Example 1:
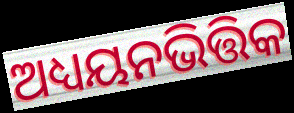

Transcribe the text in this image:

ଅଧ୍ୟୟନଭିତ୍ତିକ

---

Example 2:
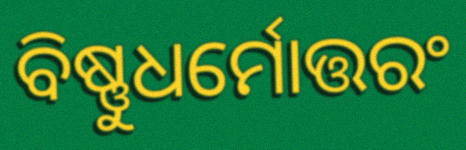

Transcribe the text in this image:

ବିଷ୍ଣୁଧର୍ମୋତ୍ତରଂ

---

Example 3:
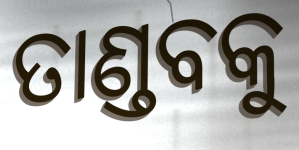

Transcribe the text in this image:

ତାଣ୍ଡବକୁ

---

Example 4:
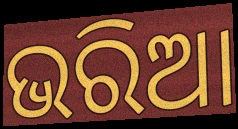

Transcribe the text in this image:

ଭରିଆ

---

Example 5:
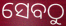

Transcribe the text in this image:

ସେବଠୁ